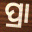
ପ୍ରା